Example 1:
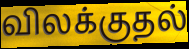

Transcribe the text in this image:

விலக்குதல்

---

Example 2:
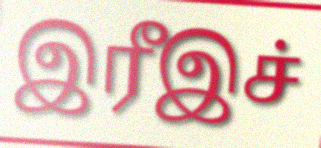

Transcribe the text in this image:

இரீஇச்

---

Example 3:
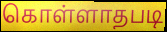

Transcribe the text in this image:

கொள்ளாதபடி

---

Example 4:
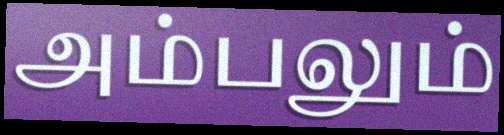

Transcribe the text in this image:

அம்பலும்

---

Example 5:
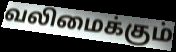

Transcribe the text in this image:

வலிமைக்கும்